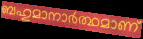
ബഹുമാനാർത്ഥമാണ്